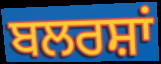
ਬਲਰਸ਼ਾਂ